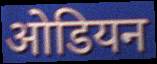
ओडियन